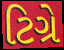
ટિગ્રે